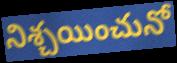
నిశ్చయించునో